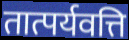
तात्पर्यवत्ति